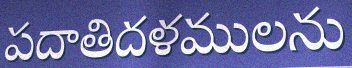
పదాతిదళములను